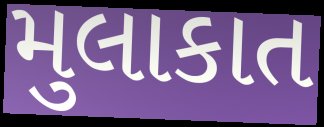
મુલાકાત